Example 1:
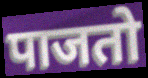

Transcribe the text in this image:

पाजतो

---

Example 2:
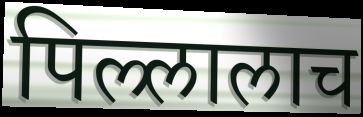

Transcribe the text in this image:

पिल्लालाच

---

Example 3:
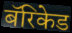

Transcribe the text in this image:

बॅरिकेड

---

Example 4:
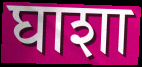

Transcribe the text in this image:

घाशा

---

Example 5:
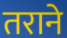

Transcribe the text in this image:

तराने